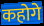
कहोगे